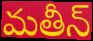
మతీన్